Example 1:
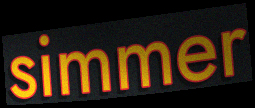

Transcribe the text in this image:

simmer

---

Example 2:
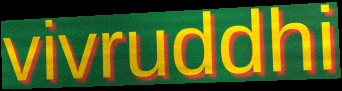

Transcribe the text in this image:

vivruddhi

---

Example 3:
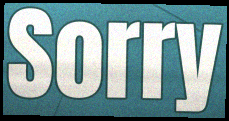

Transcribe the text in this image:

Sorry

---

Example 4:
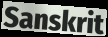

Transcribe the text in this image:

Sanskrit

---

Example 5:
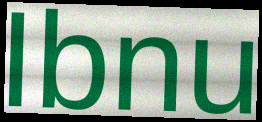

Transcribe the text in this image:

Ibnu